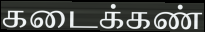
கடைக்கண்